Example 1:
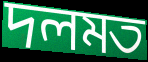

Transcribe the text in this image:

দলমত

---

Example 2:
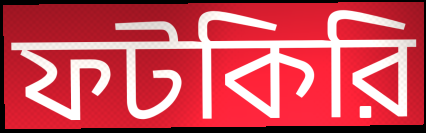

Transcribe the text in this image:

ফটকিরি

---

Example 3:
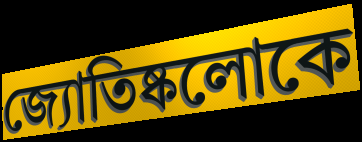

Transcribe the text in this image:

জ্যোতিষ্কলোকে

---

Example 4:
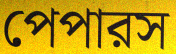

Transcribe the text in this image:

পেপারস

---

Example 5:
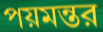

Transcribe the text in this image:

পয়মন্তর